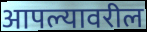
आपल्यावरील